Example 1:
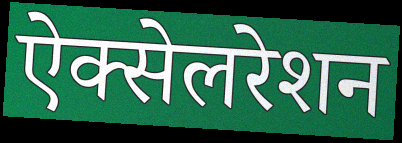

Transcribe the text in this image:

ऐक्सेलरेशन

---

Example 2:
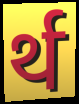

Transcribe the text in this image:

र्थ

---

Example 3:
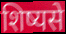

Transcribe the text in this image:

शिष्यसे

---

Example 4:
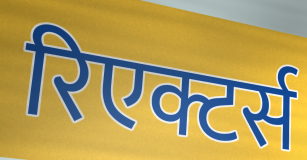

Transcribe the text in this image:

रिएक्टर्स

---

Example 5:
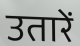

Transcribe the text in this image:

उतारें